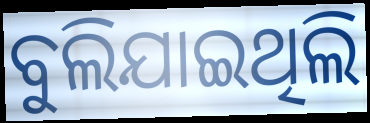
ବୁଲିଯାଇଥିଲି